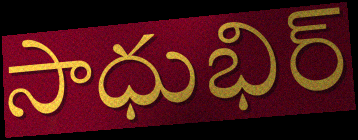
సాధుభిర్